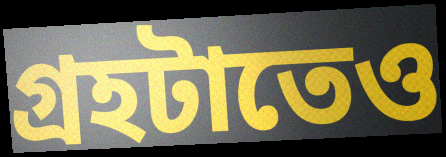
গ্রহটাতেও